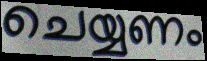
ചെയ്യണം